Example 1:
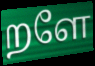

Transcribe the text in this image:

றளே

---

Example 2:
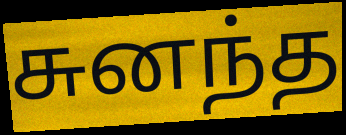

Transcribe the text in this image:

சுனந்த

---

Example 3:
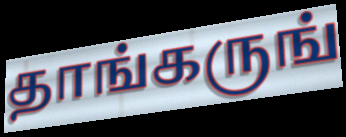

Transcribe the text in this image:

தாங்கருங்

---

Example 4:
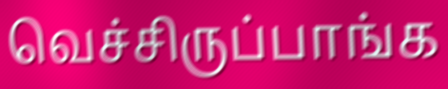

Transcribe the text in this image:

வெச்சிருப்பாங்க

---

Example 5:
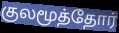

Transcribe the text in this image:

குலமூத்தோர்